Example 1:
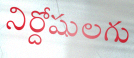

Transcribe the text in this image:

నిర్దోషులగు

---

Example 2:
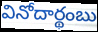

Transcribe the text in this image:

వినోదార్థంబు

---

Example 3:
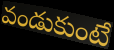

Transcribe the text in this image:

వండుకుంటే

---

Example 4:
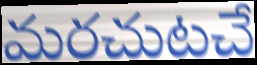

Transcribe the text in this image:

మరచుటచే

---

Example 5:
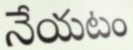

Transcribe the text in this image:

నేయటం